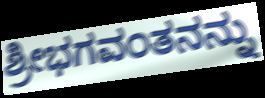
ಶ್ರೀಭಗವಂತನನ್ನು